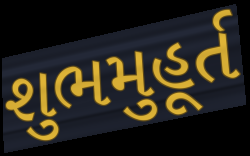
શુભમુહૂર્ત